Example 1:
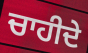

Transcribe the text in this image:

ਚਾਹੀਦੇ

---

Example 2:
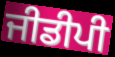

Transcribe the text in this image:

ਜੀਡੀਪੀ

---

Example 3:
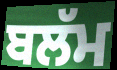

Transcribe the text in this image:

ਬਲੱਮ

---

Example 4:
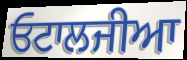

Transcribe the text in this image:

ਓਟਾਲਜੀਆ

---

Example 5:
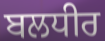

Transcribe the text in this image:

ਬਲਧੀਰ